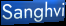
Sanghvi